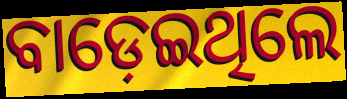
ବାଡ଼େଇଥିଲେ